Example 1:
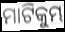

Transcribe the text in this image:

ମାଟିକୁମ୍ଭ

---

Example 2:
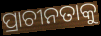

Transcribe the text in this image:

ପ୍ରାଚୀନତାକୁ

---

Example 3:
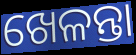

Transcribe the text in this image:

ଖେଳନ୍ତା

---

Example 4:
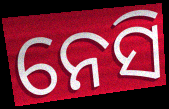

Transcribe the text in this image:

ନେସି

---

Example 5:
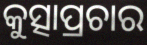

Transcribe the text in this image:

କୁତ୍ସାପ୍ରଚାର